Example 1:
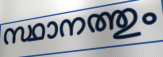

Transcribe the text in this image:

സ്ഥാനത്തും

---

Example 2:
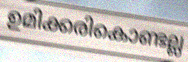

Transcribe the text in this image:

ഉമിക്കരികൊണ്ടല്ല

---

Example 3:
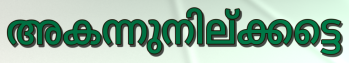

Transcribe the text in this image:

അകന്നുനില്ക്കട്ടെ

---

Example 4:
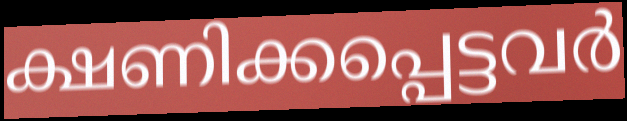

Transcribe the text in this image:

ക്ഷണിക്കപ്പെട്ടവർ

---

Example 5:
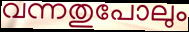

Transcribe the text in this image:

വന്നതുപോലും